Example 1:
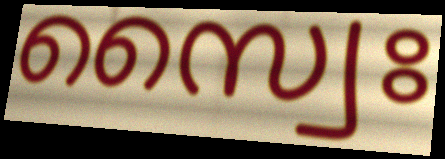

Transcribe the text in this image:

സ്വൈഃ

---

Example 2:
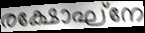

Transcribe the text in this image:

രക്ഷോഘ്നേ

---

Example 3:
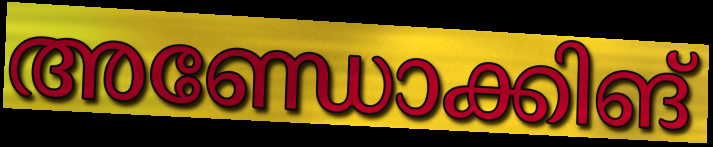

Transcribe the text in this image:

അണ്ഡോക്കിങ്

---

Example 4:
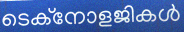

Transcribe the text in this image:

ടെക്നോളജികൾ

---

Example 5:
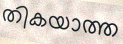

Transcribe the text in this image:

തികയാത്ത